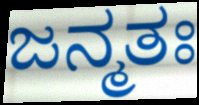
ಜನ್ಮತಃ